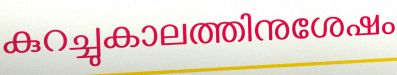
കുറച്ചുകാലത്തിനുശേഷം